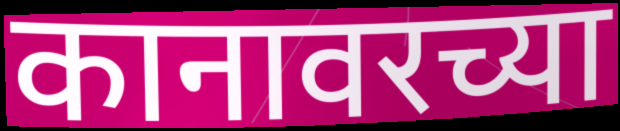
कानावरच्या